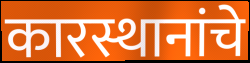
कारस्थानांचे